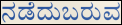
ನಡೆದುಬರುವ